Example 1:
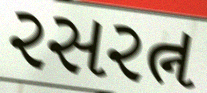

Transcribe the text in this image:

રસરત્ન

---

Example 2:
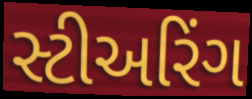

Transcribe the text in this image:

સ્ટીઅરિંગ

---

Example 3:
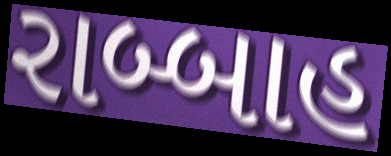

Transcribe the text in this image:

રાબ્બાહ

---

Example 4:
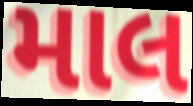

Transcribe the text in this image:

માલ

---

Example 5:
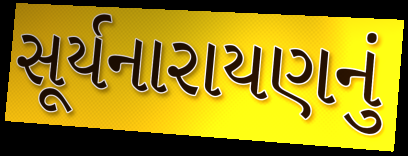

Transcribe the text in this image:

સૂર્યનારાયણનું